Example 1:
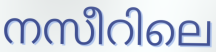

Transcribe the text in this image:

നസീറിലെ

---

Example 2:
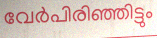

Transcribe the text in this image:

വേർപിരിഞ്ഞിട്ടും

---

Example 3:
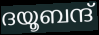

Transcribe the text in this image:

ദയൂബന്ദ്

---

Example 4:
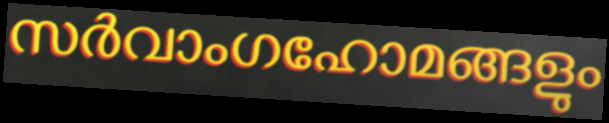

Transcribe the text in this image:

സർവാംഗഹോമങ്ങളും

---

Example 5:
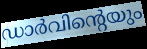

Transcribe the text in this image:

ഡാർവിന്റെയും